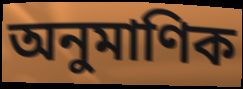
অনুমাণিক